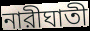
নারীঘাতী